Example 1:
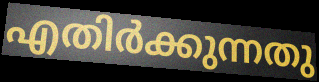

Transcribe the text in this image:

എതിർക്കുന്നതു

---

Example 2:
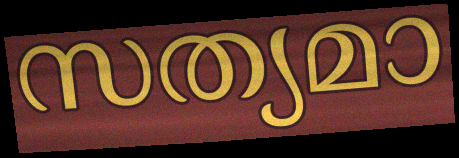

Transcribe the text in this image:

സത്യമാ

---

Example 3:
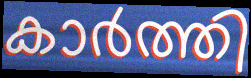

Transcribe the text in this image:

കാർത്തി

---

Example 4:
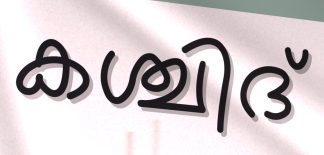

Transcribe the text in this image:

കശ്ചിദ്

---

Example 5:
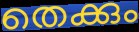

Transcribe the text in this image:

തെക്കും